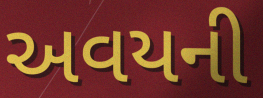
અવયની